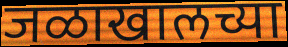
जळाखालच्या